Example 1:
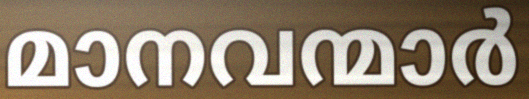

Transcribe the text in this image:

മാനവന്മാർ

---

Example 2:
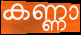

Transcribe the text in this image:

കണ്ണാ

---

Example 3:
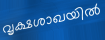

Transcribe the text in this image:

വൃക്ഷശാഖയിൽ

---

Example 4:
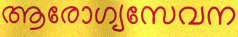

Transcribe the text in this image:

ആരോഗ്യസേവന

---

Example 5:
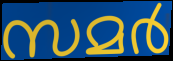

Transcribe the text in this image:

സമർ